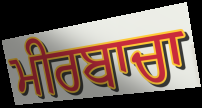
ਮੀਰਬਾਚਾ